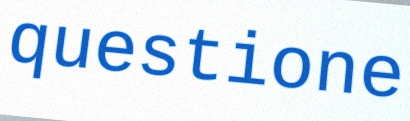
questione